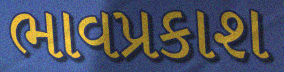
ભાવપ્રકાશ